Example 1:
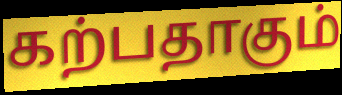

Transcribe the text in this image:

கற்பதாகும்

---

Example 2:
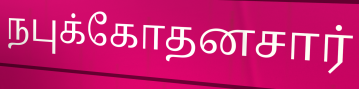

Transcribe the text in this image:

நபுக்கோதனசார்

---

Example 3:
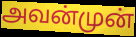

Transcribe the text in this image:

அவன்முன்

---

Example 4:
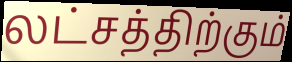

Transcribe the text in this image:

லட்சத்திற்கும்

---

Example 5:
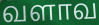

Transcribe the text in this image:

வளாவ